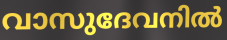
വാസുദേവനിൽ